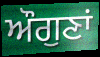
ਔਗੁਣਾਂ